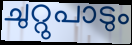
ചുറ്റുപാടും